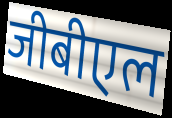
जीबीएल